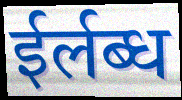
ईर्लब्ध